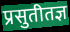
प्रसुतीतज्ञ